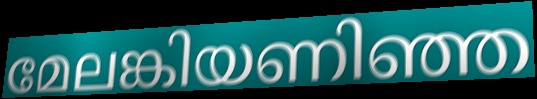
മേലങ്കിയണിഞ്ഞ